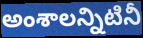
అంశాలన్నిటినీ